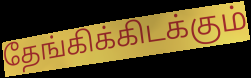
தேங்கிக்கிடக்கும்